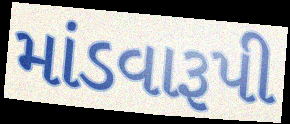
માંડવારૂપી